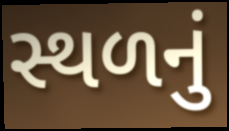
સ્થળનું